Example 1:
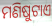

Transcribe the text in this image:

ମଣିଷୁଟାଏ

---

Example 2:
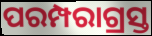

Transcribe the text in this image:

ପରମ୍ପରାଗ୍ରସ୍ତ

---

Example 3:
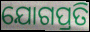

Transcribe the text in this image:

ଯୋଗପ୍ରତି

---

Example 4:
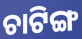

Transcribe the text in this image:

ଚାଟିଙ୍ଗ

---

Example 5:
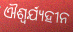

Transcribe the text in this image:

ଐଶ୍ୱର୍ଯ୍ୟହୀନ